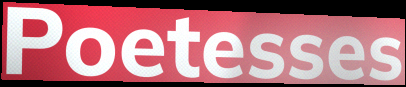
Poetesses